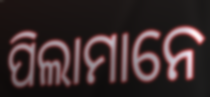
ପିଲାମାନେ